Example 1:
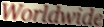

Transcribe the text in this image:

Worldwide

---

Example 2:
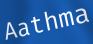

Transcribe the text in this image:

Aathma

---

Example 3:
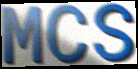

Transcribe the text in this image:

MCS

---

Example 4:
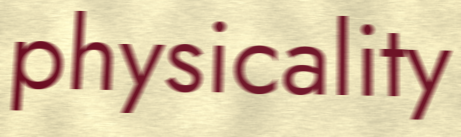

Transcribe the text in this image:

physicality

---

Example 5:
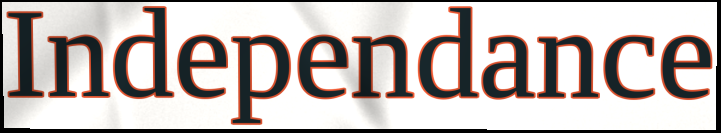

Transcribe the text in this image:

Independance